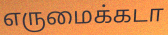
எருமைக்கடா